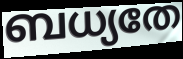
ബധ്യതേ